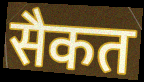
सैकत